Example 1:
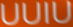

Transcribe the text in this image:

UUIU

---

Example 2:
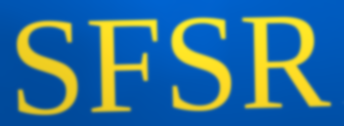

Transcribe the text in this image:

SFSR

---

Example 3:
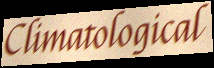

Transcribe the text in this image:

Climatological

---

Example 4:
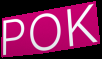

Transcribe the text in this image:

POK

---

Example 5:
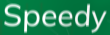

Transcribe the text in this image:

Speedy